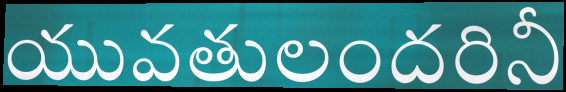
యువతులందరినీ